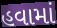
હવામાં